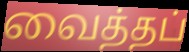
வைத்தப்